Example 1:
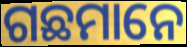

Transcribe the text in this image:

ଗଛମାନେ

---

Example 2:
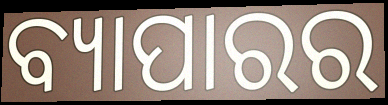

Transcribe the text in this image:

ବ୍ୟାପାରର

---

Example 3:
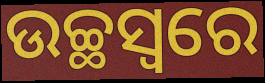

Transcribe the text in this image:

ଉଚ୍ଛସ୍ୱରେ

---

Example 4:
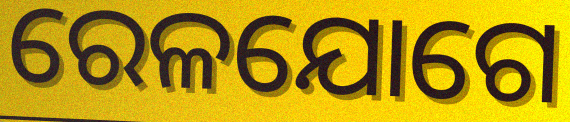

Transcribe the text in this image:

ରେଳଯୋଗେ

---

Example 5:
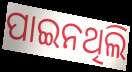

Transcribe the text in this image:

ପାଇନଥିଲି